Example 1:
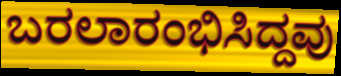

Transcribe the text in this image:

ಬರಲಾರಂಭಿಸಿದ್ದವು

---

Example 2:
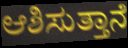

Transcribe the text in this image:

ಆಶಿಸುತ್ತಾನೆ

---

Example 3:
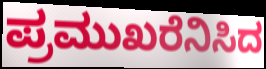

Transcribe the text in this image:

ಪ್ರಮುಖರೆನಿಸಿದ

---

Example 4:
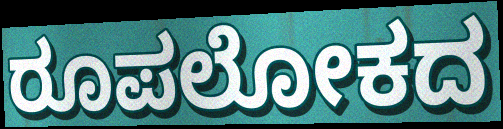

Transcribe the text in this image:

ರೂಪಲೋಕದ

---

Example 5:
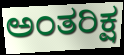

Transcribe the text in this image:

ಅಂತರಿಕ್ಷ